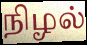
நிழல்